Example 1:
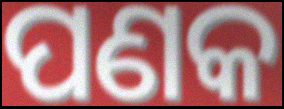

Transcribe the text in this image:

ପଣକ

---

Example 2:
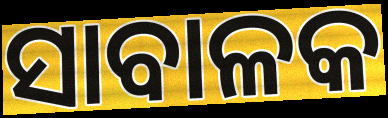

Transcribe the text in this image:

ସାବାଳକ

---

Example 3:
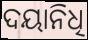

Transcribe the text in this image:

ଦୟାନିଧି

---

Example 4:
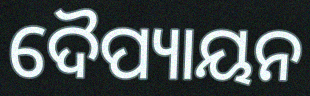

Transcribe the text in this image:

ଦୈପ୍ୟାୟନ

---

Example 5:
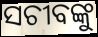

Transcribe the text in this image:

ସଚୀବଙ୍କୁ